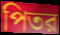
পিতর